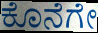
ಕೊನೆಗೇ